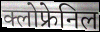
क्लोफ्रेनिल